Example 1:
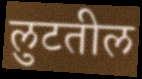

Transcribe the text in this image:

लुटतील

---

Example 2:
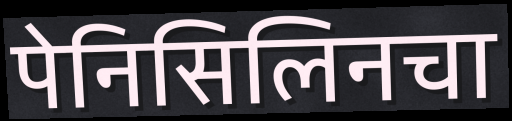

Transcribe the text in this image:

पेनिसिलिनचा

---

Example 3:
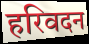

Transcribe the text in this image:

हरिवदन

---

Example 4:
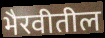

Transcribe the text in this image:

भैरवीतील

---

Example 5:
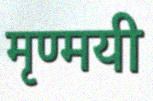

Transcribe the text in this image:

मृण्मयी